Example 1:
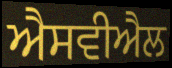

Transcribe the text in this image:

ਐਸਵੀਐਲ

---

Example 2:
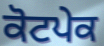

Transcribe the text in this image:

ਕੋਟਪੇਕ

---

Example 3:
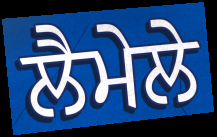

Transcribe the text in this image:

ਲੈਮੇਲੇ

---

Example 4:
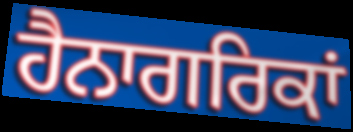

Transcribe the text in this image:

ਹੈਨਾਗਰਿਕਾਂ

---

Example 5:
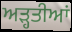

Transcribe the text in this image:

ਅੜ੍ਹਤੀਆਂ